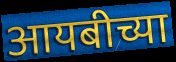
आयबीच्या